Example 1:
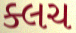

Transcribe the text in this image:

ક્લચ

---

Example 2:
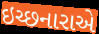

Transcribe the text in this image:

ઇચ્છનારાએ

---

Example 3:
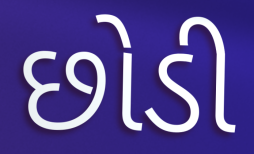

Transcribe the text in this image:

છોડી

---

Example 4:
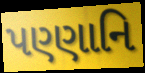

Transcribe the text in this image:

પણ્ણાનિ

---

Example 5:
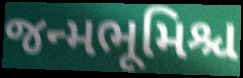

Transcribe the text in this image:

જન્મભૂમિશ્ચ